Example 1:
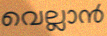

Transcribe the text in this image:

വെല്ലാൻ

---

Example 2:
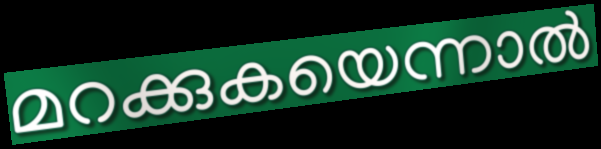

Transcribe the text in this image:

മറക്കുകയെന്നാൽ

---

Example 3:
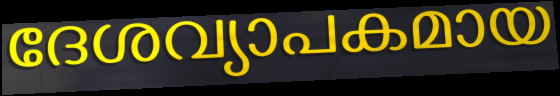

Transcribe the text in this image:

ദേശവ്യാപകമായ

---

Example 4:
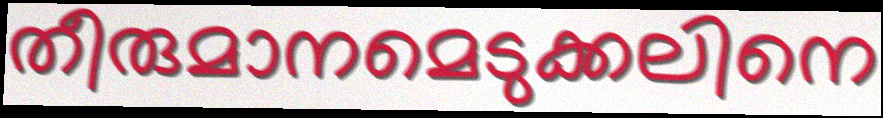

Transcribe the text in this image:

തീരുമാനമെടുക്കലിനെ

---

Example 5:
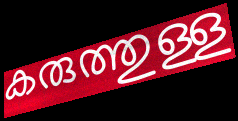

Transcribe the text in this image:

കരുത്തുള്ള